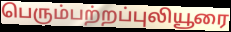
பெரும்பற்றப்புலியூரை